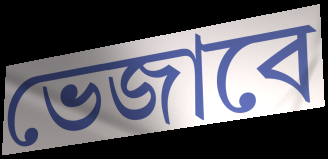
ভেজাবে